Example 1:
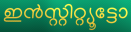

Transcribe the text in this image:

ഇൻസ്റ്റിറ്റ്യൂട്ടോ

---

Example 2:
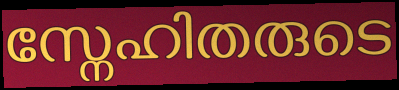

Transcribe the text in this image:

സ്നേഹിതരുടെ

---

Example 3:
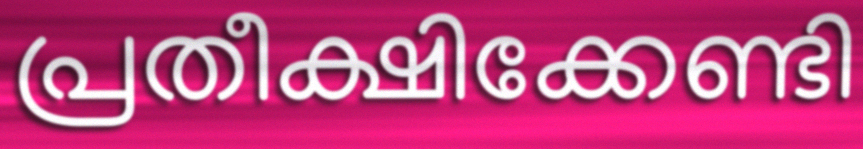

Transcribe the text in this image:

പ്രതീക്ഷിക്കേണ്ടി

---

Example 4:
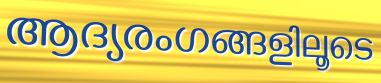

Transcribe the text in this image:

ആദ്യരംഗങ്ങളിലൂടെ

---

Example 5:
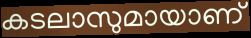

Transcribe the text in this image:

കടലാസുമായാണ്